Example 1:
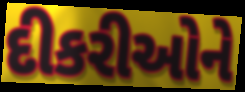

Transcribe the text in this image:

દીકરીઓને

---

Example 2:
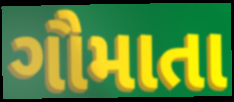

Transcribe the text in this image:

ગૌમાતા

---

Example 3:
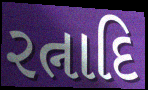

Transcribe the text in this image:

રત્નાદિ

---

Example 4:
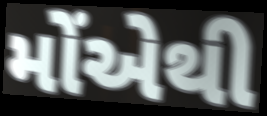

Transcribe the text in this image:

મોંએથી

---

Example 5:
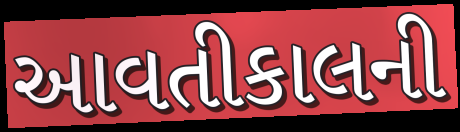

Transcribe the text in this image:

આવતીકાલની